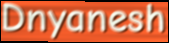
Dnyanesh